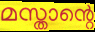
മസ്താന്റെ